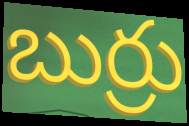
బుర్రు